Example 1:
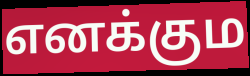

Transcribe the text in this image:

எனக்கும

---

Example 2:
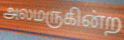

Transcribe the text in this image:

அலமருகின்ற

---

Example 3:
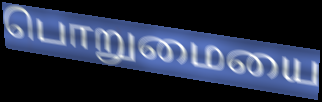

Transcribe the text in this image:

பொறுமையை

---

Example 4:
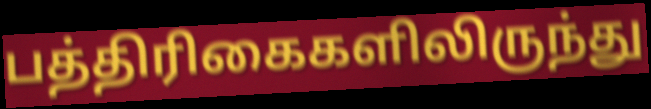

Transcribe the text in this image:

பத்திரிகைகளிலிருந்து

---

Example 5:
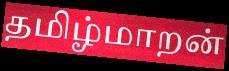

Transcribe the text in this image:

தமிழ்மாறன்